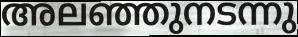
അലഞ്ഞുനടന്നു